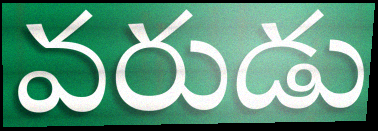
వరుడు